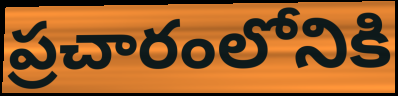
ప్రచారంలోనికి